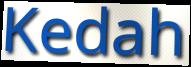
Kedah